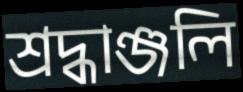
শ্ৰদ্ধাঞ্জলি